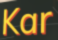
Kar